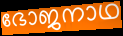
ഭോജനാഥ